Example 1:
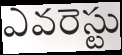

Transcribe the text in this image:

ఎవరెస్టు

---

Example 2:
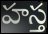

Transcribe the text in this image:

హస్త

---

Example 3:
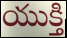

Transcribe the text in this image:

యుక్తి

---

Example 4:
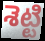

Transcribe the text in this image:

శెట్టి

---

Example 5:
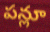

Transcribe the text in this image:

పన్లూ